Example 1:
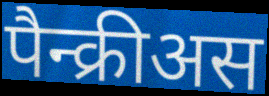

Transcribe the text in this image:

पैन्क्रीअस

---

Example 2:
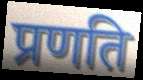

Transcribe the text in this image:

प्रणति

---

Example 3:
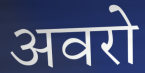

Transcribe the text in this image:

अवरो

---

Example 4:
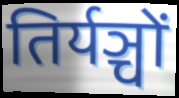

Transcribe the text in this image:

तिर्यञ्चों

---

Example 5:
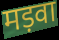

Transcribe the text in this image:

मड़वा